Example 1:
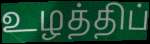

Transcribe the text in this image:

உழத்திப்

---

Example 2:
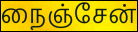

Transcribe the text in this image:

நைஞ்சேன்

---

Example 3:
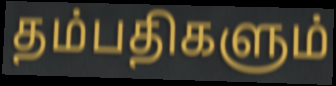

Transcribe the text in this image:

தம்பதிகளும்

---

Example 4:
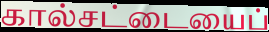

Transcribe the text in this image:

கால்சட்டையைப்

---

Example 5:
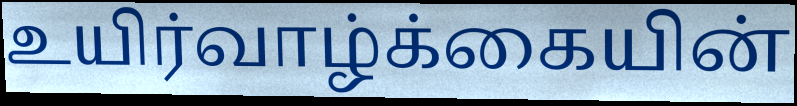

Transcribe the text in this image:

உயிர்வாழ்க்கையின்